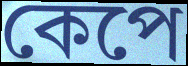
কেপে